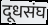
दूधसंघ